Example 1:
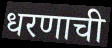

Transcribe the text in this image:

धरणाची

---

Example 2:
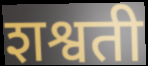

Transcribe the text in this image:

शश्वती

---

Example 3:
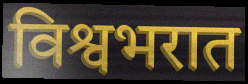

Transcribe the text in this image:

विश्वभरात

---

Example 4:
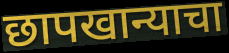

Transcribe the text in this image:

छापखान्याचा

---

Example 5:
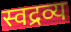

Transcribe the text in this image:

स्वद्रव्य